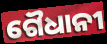
ଗୈଧାନୀ